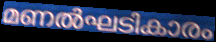
മണൽഘടികാരം